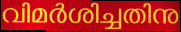
വിമർശിച്ചതിനു